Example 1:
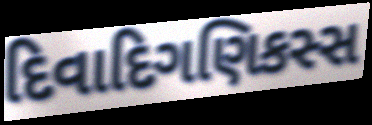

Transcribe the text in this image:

દિવાદિગણિકસ્સ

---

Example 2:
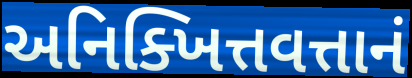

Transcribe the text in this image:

અનિક્ખિત્તવત્તાનં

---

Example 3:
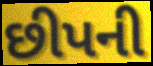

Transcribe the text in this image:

છીપની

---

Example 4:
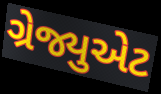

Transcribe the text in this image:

ગ્રેજ્યુએટ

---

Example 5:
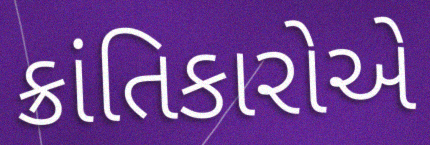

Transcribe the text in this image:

ક્રાંતિકારોએ